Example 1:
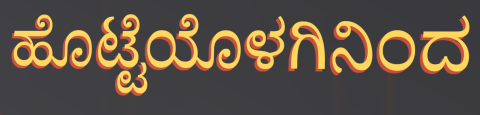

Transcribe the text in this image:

ಹೊಟ್ಟೆಯೊಳಗಿನಿಂದ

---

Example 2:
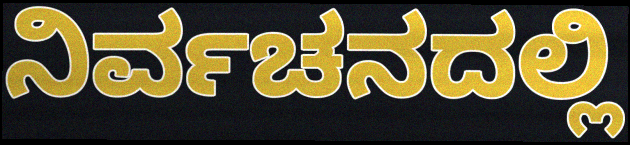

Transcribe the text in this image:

ನಿರ್ವಚನದಲ್ಲಿ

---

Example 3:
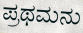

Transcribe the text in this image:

ಪ್ರಥಮನು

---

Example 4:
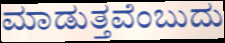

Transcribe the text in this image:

ಮಾಡುತ್ತವೆಂಬುದು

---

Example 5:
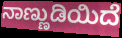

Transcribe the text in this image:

ನಾಣ್ಣುಡಿಯಿದೆ